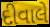
દીવાલે